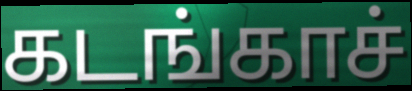
கடங்காச்